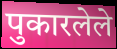
पुकारलेले